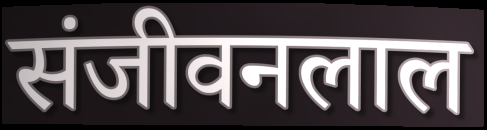
संजीवनलाल